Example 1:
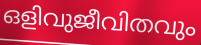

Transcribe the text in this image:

ഒളിവുജീവിതവും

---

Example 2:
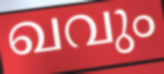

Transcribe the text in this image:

ഖവും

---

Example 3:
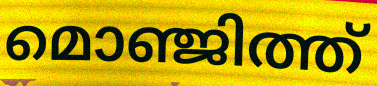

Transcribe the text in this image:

മൊഞ്ജിത്ത്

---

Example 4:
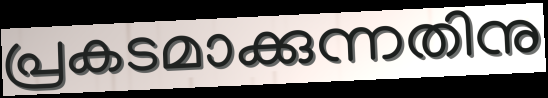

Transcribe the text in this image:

പ്രകടമാക്കുന്നതിനു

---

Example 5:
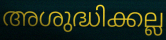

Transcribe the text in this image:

അശുദ്ധിക്കല്ല